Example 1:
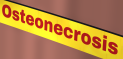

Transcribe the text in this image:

Osteonecrosis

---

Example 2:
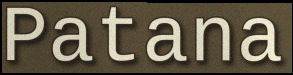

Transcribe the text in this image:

Patana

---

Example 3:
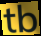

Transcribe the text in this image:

tb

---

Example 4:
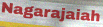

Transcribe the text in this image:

Nagarajaiah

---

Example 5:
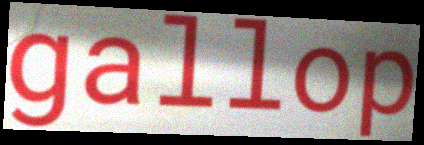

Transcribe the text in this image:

gallop